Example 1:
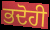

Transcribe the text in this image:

ਭਦੋਹੀ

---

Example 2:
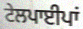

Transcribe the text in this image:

ਟੇਲਪਾਈਪਾਂ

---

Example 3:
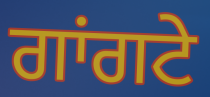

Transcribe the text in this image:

ਗਾਂਗਟੇ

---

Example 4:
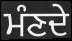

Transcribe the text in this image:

ਮੰਣਦੇ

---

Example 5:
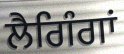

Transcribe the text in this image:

ਲੈਗਿੰਗਾਂ